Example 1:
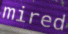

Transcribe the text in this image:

mired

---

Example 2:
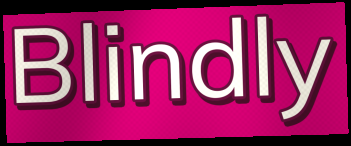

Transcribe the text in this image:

Blindly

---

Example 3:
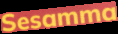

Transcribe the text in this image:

Sesamma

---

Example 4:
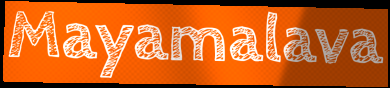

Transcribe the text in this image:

Mayamalava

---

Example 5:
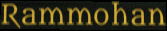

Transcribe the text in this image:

Rammohan